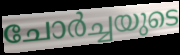
ചോർച്ചയുടെ